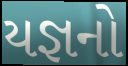
યજ્ઞનો